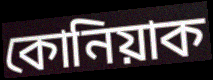
কোনিয়াক